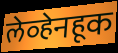
लेव्हेनहूक